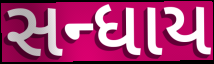
સન્ધાય